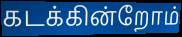
கடக்கின்றோம்